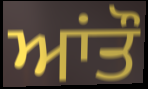
ਆਂਤੌ